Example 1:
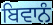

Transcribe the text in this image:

ਬਿਵਾਨੰ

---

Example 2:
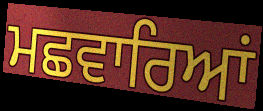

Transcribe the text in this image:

ਮਛਵਾਰਿਆਂ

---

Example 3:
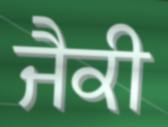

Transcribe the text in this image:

ਜੈਕੀ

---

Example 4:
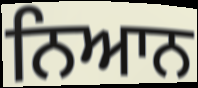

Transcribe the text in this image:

ਨਿਆਨ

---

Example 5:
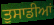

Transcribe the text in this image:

ਤੁਸਾਡੀਆਂ